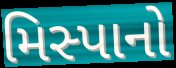
મિસ્પાનો